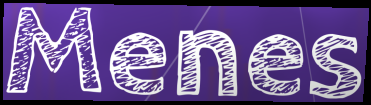
Menes